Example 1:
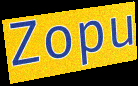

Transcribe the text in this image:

Zopu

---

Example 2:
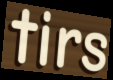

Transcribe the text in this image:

tirs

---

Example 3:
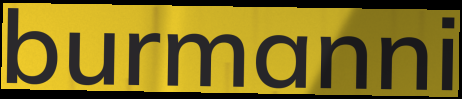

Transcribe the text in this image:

burmanni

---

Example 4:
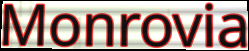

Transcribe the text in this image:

Monrovia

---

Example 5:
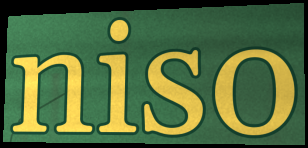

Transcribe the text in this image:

niso